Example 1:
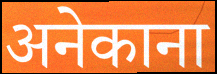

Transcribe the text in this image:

अनेकाना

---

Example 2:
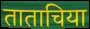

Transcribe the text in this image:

ताताचिया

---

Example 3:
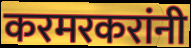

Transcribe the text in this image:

करमरकरांनी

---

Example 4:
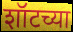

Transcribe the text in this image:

शॉटच्या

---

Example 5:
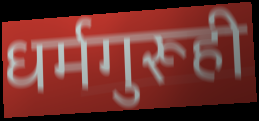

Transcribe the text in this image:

धर्मगुरूही